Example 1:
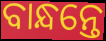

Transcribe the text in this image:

ବାନ୍ଧନ୍ତେ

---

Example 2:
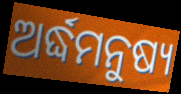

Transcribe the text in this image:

ଅର୍ଦ୍ଧମନୁଷ୍ୟ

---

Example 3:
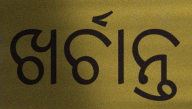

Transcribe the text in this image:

ଖର୍ଚାନ୍ତ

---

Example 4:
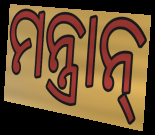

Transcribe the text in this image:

ମନ୍ତ୍ରାନ୍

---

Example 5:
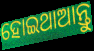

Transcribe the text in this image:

ହୋଇଥାଆନ୍ତୁ